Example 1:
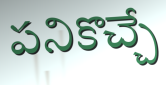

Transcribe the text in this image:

పనికొచ్చే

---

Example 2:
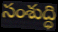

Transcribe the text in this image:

సంశుద్ధి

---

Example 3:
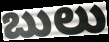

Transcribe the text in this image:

బులు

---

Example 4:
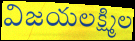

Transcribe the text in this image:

విజయలక్ష్మిల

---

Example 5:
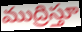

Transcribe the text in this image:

ముద్రిస్తూ